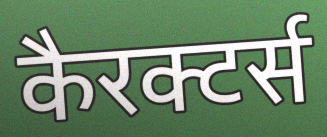
कैरक्टर्स